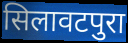
सिलावटपुरा